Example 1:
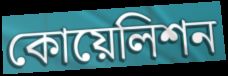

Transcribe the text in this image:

কোয়েলিশন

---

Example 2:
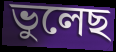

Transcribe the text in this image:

ভুলেছ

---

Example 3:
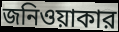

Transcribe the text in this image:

জনিওয়াকার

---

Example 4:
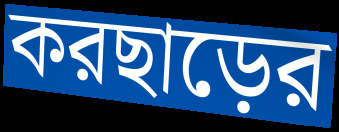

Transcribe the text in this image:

করছাড়ের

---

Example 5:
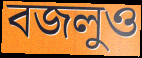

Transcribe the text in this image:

বজলুও